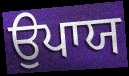
ਉਪਾਯ